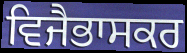
ਵਿਜੈਭਾਸਕਰ